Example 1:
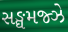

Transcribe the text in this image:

સઙ્ઘમજ્ઝે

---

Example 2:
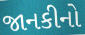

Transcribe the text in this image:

જાનકીનો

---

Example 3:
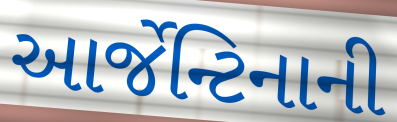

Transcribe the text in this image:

આર્જેન્ટિનાની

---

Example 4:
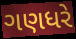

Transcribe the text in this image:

ગણધરે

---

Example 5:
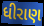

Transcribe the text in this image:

ધીરાણ